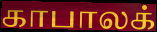
காபாலக்